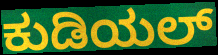
ಕುಡಿಯಲ್